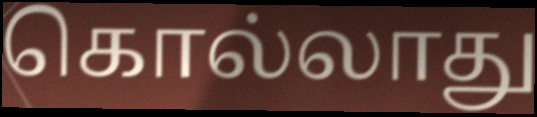
கொல்லாது